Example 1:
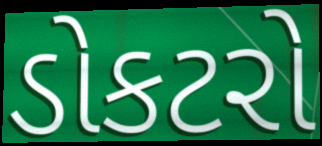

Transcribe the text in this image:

ડોકટરો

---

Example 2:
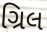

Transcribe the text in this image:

ગ્રિલ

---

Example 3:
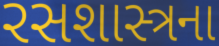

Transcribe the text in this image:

રસશાસ્ત્રના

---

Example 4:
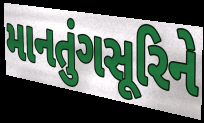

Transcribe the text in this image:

માનતુંગસૂરિને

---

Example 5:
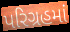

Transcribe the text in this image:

પરિગ્રહમાં